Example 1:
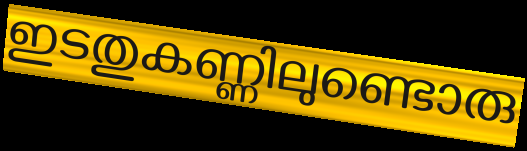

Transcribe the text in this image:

ഇടതുകണ്ണിലുണ്ടൊരു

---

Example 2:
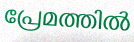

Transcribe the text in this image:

പ്രേമത്തിൽ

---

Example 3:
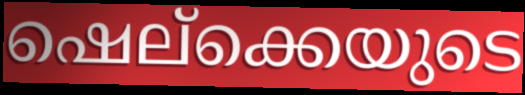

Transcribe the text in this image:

ഷെല്ക്കെയുടെ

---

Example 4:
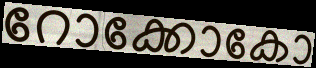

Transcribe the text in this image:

റോക്കോകോ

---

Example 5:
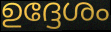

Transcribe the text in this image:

ഉദ്ദേശം